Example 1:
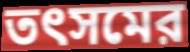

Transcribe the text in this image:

তৎসমের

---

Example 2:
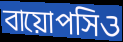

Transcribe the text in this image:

বায়োপসিও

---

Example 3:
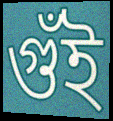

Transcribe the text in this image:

গুঁই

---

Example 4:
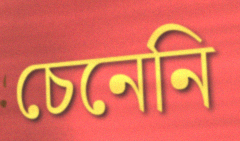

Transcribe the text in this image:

চেনেনি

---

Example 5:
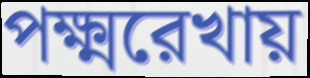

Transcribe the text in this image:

পক্ষ্মরেখায়